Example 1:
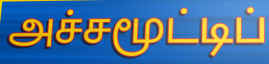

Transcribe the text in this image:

அச்சமூட்டிப்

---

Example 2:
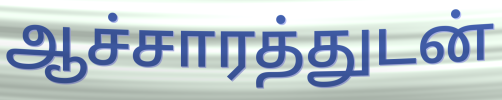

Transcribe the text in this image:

ஆச்சாரத்துடன்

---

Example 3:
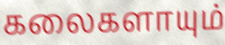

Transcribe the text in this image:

கலைகளாயும்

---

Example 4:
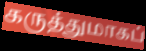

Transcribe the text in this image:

கருத்துமாகப்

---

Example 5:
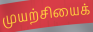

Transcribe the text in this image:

முயற்சியைக்